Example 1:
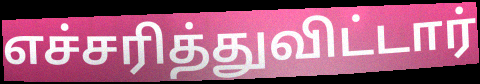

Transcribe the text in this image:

எச்சரித்துவிட்டார்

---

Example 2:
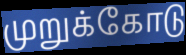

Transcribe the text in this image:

முறுக்கோடு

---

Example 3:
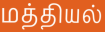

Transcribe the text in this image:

மத்தியல்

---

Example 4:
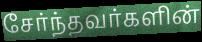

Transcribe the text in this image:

சேர்ந்தவர்களின்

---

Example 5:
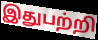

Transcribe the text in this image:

இதுபற்றி